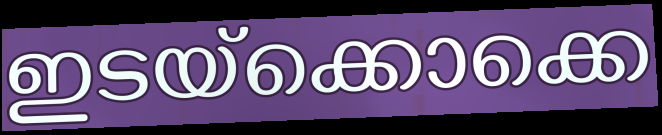
ഇടയ്‌ക്കൊക്കെ